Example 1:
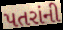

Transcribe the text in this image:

પતરાંની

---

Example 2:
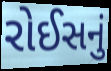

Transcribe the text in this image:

રોઈસનું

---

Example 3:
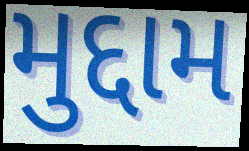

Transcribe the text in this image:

મુદ્દામ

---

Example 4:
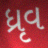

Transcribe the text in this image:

ધ્રૃવ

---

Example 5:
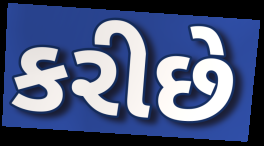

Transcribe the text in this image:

કરીછે